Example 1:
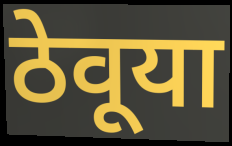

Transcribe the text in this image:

ठेवूया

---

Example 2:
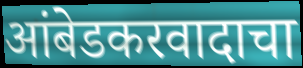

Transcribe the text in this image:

आंबेडकरवादाचा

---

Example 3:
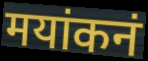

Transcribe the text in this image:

मयांकनं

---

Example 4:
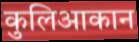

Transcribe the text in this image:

कुलिआकान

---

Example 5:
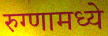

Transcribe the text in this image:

रुग्णामध्ये